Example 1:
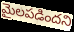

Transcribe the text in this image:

మైలపడిందని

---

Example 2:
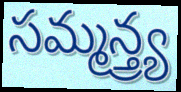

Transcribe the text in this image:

సమ్మన్త్ర్య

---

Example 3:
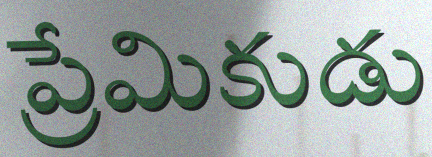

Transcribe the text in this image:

ప్రేమికుడు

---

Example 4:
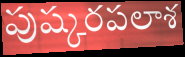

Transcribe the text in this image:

పుష్కరపలాశ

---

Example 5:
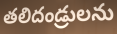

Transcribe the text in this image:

తలిదండ్రులను